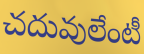
చదువులేంటీ